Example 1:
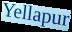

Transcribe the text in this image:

Yellapur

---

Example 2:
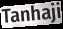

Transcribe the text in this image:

Tanhaji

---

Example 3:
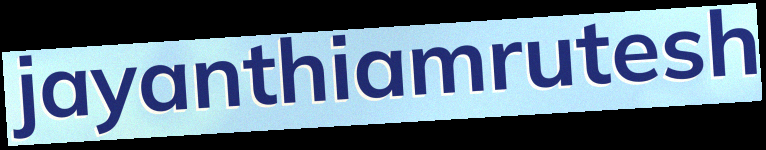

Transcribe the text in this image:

jayanthiamrutesh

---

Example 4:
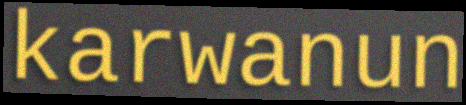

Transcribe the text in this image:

karwanun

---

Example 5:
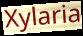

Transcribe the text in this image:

Xylaria